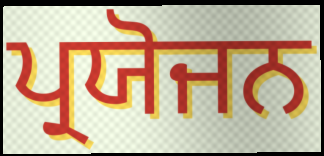
ਪ੍ਰਯੋਜਨ